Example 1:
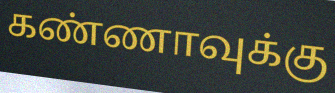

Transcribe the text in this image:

கண்ணாவுக்கு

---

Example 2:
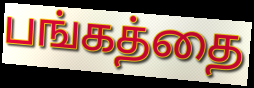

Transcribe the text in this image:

பங்கத்தை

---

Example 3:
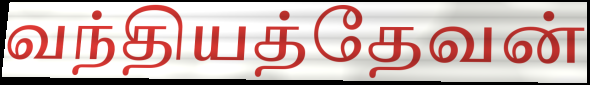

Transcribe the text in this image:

வந்தியத்தேவன்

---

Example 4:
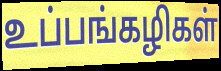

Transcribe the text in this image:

உப்பங்கழிகள்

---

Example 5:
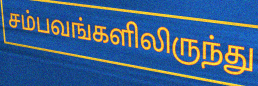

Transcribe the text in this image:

சம்பவங்களிலிருந்து